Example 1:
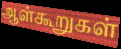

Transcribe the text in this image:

ஆள்கூறுகள்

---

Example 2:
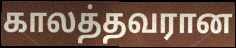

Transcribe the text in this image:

காலத்தவரான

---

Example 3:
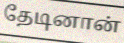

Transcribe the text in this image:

தேடினான்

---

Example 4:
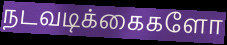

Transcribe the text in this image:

நடவடிக்கைகளோ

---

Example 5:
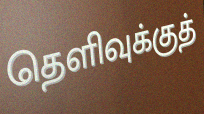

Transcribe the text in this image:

தெளிவுக்குத்